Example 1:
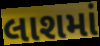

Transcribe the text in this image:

લાશમાં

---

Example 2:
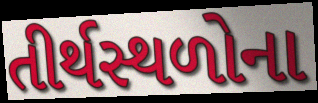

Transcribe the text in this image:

તીર્થસ્થળોના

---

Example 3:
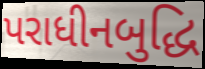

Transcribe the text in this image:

પરાધીનબુદ્ધિ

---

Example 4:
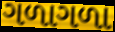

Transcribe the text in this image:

ગળાગળા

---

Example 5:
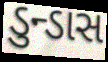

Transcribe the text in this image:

ડુન્ડાસ